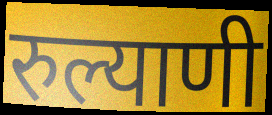
रुल्याणी